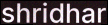
shridhar